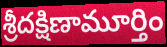
శ్రీదక్షిణామూర్తిం